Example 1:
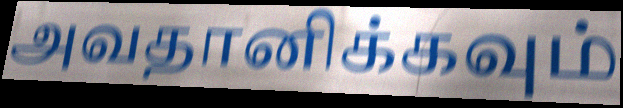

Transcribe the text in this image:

அவதானிக்கவும்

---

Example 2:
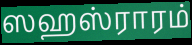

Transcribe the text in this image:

ஸஹஸ்ராரம்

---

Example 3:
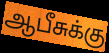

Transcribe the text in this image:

ஆபீசுக்கு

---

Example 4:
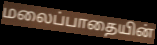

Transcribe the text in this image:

மலைப்பாதையின்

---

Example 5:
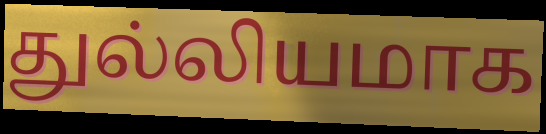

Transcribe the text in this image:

துல்லியமாக